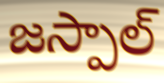
జస్పాల్